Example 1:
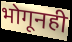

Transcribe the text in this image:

भोगूनही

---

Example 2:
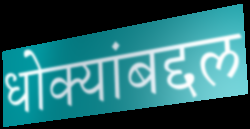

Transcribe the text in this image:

धोक्यांबद्दल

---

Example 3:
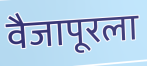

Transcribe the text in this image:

वैजापूरला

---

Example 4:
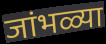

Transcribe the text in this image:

जांभळ्या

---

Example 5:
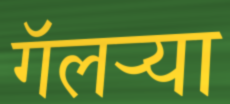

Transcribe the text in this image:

गॅलऱ्या